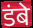
डंबे